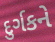
દુર્ગકને